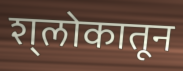
श्लोकातून